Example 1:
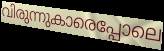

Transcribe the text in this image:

വിരുന്നുകാരെപ്പോലെ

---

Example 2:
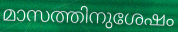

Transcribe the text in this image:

മാസത്തിനുശേഷം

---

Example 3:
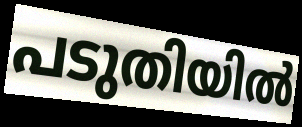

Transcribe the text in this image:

പടുതിയിൽ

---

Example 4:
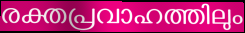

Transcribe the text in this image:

രക്തപ്രവാഹത്തിലും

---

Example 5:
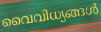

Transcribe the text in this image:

വൈവിധ്യങ്ങൾ